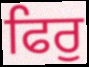
ਫਿਰੁ